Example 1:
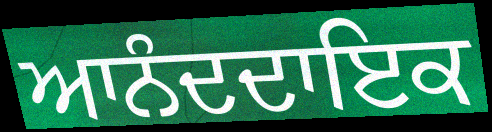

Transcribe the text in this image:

ਆਨੰਦਦਾਇਕ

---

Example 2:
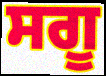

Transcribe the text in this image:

ਸਗੂ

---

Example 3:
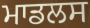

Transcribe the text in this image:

ਮਾਡਲਸ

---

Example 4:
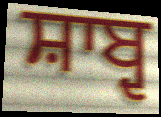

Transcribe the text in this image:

ਸ਼ਾਬ੍ਦ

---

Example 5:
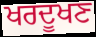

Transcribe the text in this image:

ਖਰਦੂਖਣ